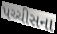
પચ્ચીસના